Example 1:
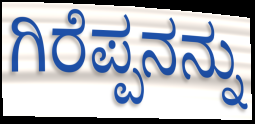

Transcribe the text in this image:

ಗಿರೆಪ್ಪನನ್ನು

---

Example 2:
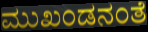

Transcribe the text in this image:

ಮುಖಂಡನಂತೆ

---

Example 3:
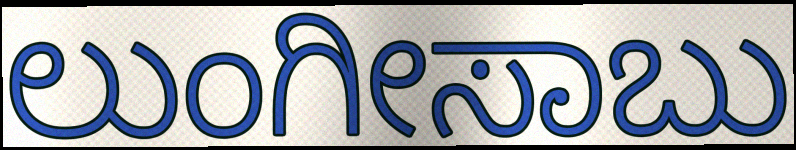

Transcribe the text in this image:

ಲುಂಗೀಸಾಬು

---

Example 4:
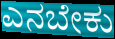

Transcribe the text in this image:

ಎನಬೇಕು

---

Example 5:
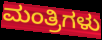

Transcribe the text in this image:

ಮಂತ್ರಿಗಳು